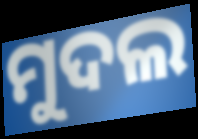
ମୁଦଲ